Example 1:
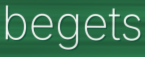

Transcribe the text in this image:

begets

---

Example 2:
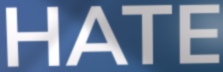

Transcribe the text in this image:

HATE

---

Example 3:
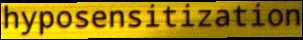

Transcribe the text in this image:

hyposensitization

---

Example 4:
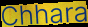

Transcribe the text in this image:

Chhara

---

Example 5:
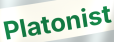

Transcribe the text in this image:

Platonist